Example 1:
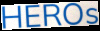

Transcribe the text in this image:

HEROs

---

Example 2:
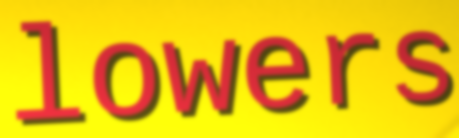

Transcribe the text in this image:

lowers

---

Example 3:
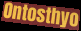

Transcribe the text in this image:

Ontosthyo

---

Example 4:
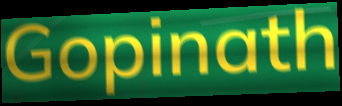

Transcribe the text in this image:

Gopinath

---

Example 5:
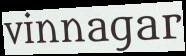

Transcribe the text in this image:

vinnagar